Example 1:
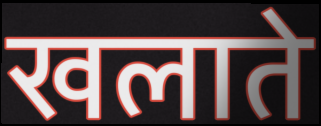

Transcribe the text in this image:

खलाते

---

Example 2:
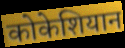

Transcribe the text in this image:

कोकेशियान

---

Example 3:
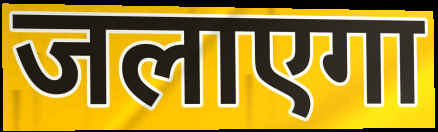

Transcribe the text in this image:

जलाएगा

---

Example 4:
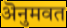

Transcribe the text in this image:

ऄनुमवत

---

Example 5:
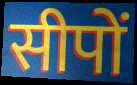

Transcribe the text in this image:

सीपों